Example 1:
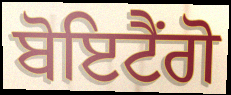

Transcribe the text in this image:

ਬੋਇਟੈਂਗੋ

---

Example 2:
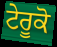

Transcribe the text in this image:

ਟੇਰੂਕੋ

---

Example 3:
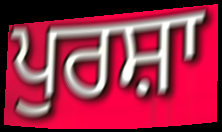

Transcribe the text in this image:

ਪੁਰਸ਼ਾ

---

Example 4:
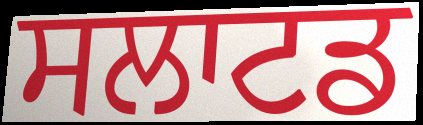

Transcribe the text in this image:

ਸਲਾਟਡ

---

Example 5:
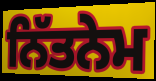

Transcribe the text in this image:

ਨਿੱਤਨੇਮ